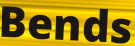
Bends